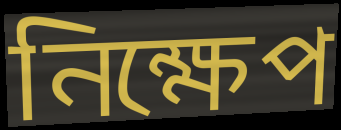
নিক্ষেপ